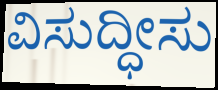
ವಿಸುದ್ಧೀಸು